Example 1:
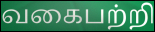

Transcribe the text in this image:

வகைபற்றி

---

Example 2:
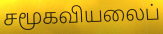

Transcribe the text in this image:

சமூகவியலைப்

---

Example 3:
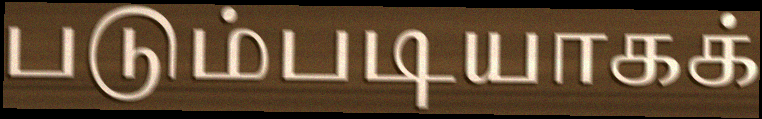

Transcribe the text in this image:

படும்படியாகக்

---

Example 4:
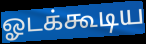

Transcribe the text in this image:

ஓடக்கூடிய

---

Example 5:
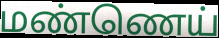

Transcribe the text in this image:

மண்ணெய்